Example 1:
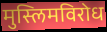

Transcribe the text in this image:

मुस्लिमविरोध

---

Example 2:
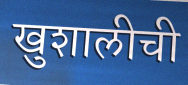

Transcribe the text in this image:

खुशालीची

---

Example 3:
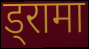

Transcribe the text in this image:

ड्रामा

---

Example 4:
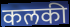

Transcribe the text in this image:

कलकी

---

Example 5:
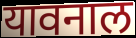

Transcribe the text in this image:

यावनाल